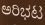
ಅರಿಭಟ